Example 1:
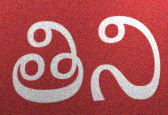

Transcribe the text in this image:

తిని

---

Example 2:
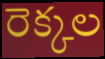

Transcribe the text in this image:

రెక్కల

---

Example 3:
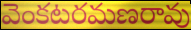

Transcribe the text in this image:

వెంకటరమణరావు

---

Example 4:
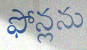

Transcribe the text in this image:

ఫోన్లను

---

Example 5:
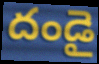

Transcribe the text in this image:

దండై